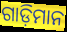
ଗାଡ଼ିମାନ